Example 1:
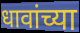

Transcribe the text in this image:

धावांच्या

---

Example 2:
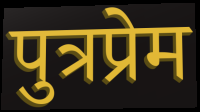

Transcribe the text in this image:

पुत्रप्रेम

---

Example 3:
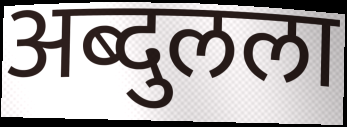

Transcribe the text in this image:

अब्दुलला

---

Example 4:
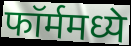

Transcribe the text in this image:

फॉर्ममध्ये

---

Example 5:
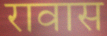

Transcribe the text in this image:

रावास